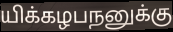
யிக்கழபநனுக்கு